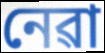
নেৱা